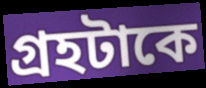
গ্রহটাকে